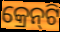
କ୍ରେନ୍‍ଟି